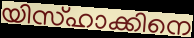
യിസ്ഹാക്കിനെ